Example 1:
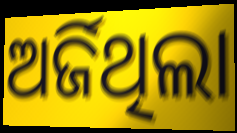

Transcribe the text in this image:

ଅର୍ଜିଥିଲା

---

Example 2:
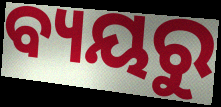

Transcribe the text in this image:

ବ୍ୟୟରୁ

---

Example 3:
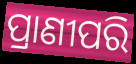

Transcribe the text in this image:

ପ୍ରାଣୀପରି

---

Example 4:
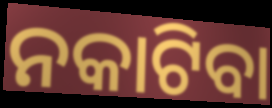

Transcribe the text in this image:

ନକାଟିବା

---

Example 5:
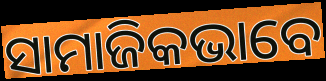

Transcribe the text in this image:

ସାମାଜିକଭାବେ